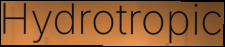
Hydrotropic